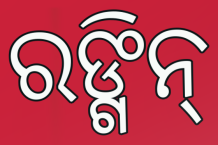
ରଙ୍ଗିନ୍